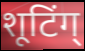
शूटिंग्